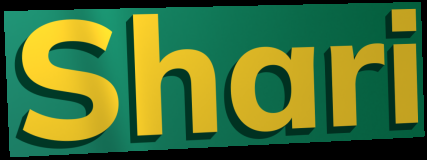
Shari